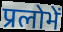
प्रलोभें